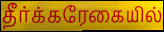
தீர்க்கரேகையில்